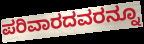
ಪರಿವಾರದವರನ್ನೂ